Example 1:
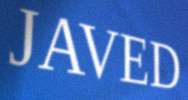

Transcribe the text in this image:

JAVED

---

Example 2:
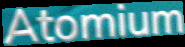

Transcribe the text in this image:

Atomium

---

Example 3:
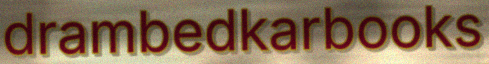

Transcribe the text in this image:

drambedkarbooks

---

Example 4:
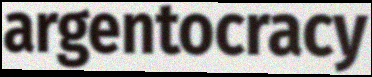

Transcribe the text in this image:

argentocracy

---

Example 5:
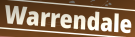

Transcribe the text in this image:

Warrendale